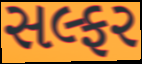
સલ્ફર